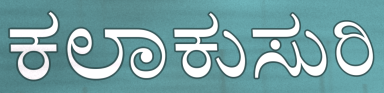
ಕಲಾಕುಸುರಿ